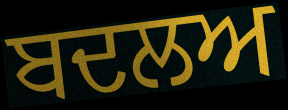
ਬਦਲਅ